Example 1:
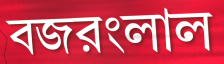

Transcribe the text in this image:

বজরংলাল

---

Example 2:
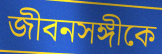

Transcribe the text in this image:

জীবনসঙ্গীকে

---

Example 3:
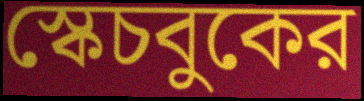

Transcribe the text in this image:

স্কেচবুকের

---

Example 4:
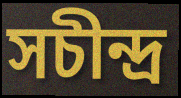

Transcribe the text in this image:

সচীন্দ্র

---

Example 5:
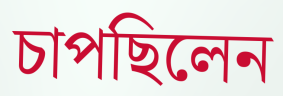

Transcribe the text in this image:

চাপছিলেন